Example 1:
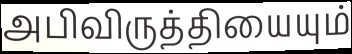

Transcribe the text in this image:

அபிவிருத்தியையும்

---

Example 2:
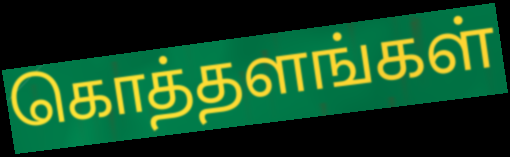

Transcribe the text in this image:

கொத்தளங்கள்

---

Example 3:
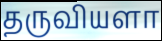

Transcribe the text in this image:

தருவியளா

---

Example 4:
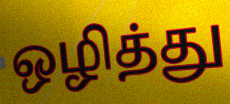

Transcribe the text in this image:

ஒழித்து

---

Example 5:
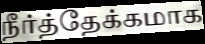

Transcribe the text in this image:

நீர்த்தேக்கமாக